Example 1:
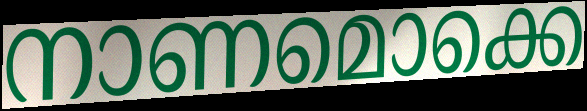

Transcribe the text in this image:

നാണമൊക്കെ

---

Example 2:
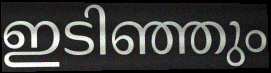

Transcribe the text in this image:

ഇടിഞ്ഞും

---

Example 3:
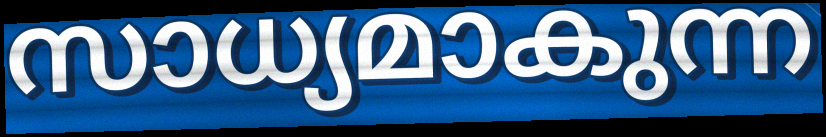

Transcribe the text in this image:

സാധ്യമാകുന്ന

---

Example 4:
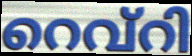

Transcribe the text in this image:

റെവ്റി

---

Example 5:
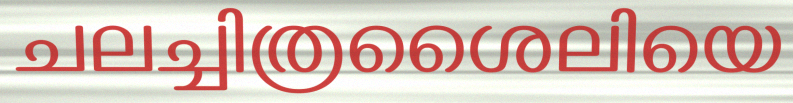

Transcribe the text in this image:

ചലച്ചിത്രശൈലിയെ